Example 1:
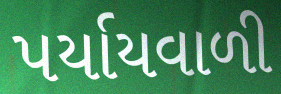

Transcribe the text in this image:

પર્યાયવાળી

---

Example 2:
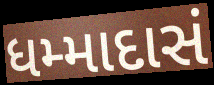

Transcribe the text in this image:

ધમ્માદાસં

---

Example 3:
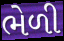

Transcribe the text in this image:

ભેળી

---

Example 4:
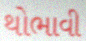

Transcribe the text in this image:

થોભાવી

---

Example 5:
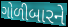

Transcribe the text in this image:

ગોળીબારને